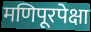
मणिपूरपेक्षा